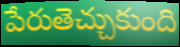
పేరుతెచ్చుకుంది